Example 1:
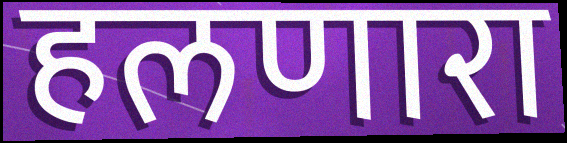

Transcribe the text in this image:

हलणारा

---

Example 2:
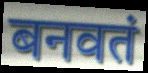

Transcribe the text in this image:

बनवतं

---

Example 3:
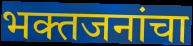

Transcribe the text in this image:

भक्तजनांचा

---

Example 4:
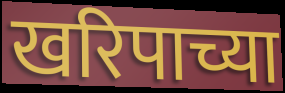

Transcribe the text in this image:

खरिपाच्या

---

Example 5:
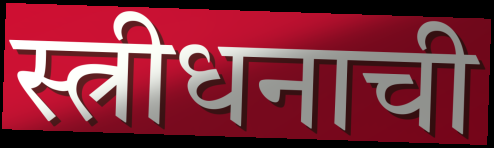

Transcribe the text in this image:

स्त्रीधनाची